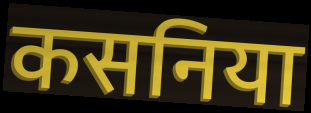
कसनिया